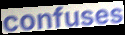
confuses